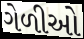
ગેળીઓ